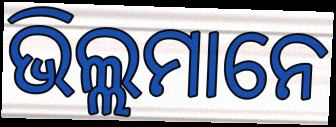
ଭିଲ୍ଲମାନେ